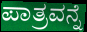
ಪಾತ್ರವನ್ನೆ